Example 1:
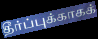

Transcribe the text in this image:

தீர்ப்புக்காகக்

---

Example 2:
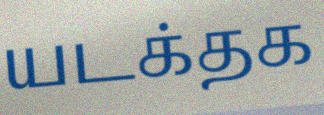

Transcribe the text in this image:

யடக்தக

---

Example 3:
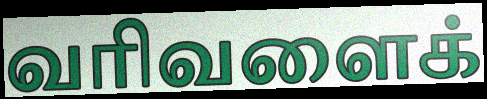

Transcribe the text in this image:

வரிவளைக்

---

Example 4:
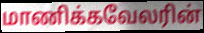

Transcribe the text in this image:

மாணிக்கவேலரின்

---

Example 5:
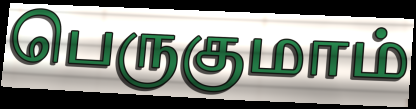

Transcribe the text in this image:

பெருகுமாம்